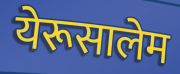
येरूसालेम